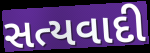
સત્યવાદી